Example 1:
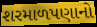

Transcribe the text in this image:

શરમાળપણાનો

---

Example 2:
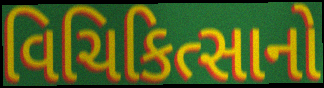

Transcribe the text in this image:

વિચિકિત્સાનો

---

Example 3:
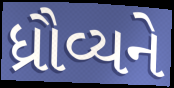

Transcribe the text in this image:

ધ્રૌવ્યને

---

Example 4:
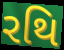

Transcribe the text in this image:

રથિ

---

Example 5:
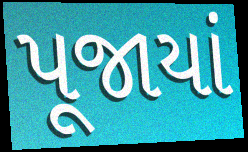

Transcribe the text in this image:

પૂજાયાં